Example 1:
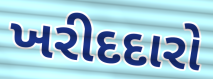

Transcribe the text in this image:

ખરીદદારો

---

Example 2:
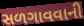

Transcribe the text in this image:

સળગાવવાની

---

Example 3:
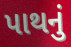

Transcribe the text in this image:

પાથનું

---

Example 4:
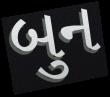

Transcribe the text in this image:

બુન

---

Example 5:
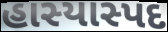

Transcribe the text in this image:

હાસ્યાસ્પદ